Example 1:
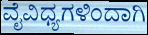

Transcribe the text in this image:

ವೈವಿಧ್ಯಗಳಿಂದಾಗಿ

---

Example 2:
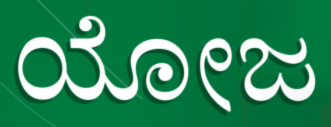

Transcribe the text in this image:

ಯೋಜ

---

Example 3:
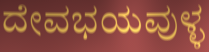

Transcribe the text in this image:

ದೇವಭಯವುಳ್ಳ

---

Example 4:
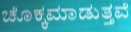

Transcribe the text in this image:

ಚೊಕ್ಕಮಾಡುತ್ತವೆ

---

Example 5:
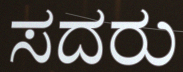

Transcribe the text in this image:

ಸದರು